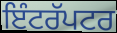
ਇੰਟਰੱਪਟਰ